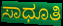
ಸಾಧೂತಿ